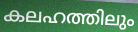
കലഹത്തിലും